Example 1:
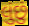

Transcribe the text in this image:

લુંછું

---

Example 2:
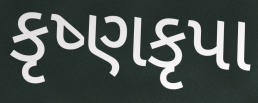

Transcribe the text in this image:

કૃષ્ણકૃપા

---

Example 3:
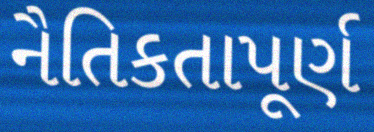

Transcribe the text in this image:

નૈતિકતાપૂર્ણ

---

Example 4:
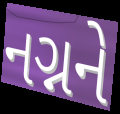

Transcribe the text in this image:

નગ્નને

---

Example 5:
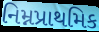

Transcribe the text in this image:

નિમ્નપ્રાથમિક